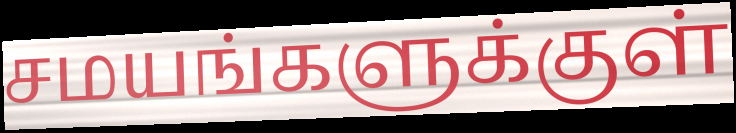
சமயங்களுக்குள்